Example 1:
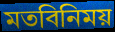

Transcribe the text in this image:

মতবিনিময়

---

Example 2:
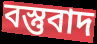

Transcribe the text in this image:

বস্তুবাদ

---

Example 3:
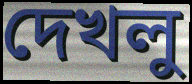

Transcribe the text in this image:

দেখলু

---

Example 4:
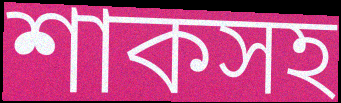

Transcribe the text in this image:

শাকসহ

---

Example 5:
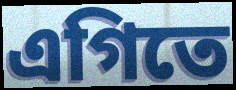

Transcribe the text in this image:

এগিতে